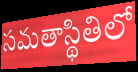
సమతాస్థితిలో